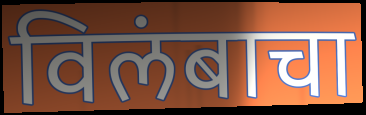
विलंबाचा